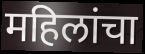
महिलांचा